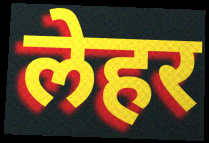
लेहर